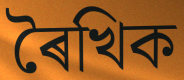
ৰৈখিক